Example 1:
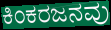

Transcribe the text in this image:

ಕಿಂಕರಜನವು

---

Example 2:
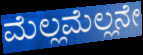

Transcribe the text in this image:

ಮೆಲ್ಲಮೆಲ್ಲನೇ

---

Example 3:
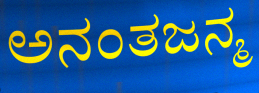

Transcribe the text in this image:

ಅನಂತಜನ್ಮ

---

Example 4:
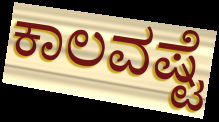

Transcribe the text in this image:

ಕಾಲವಷ್ಟೆ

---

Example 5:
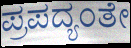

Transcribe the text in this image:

ಪ್ರಪದ್ಯಂತೇ